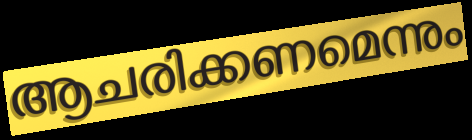
ആചരിക്കണമെന്നും